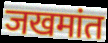
जखमांत